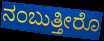
ನಂಬುತ್ತೀರೊ